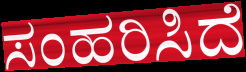
ಸಂಹರಿಸಿದೆ